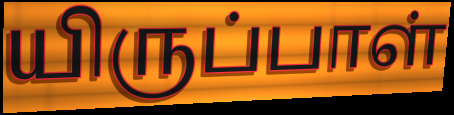
யிருப்பாள்